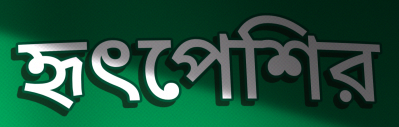
হৃৎপেশির